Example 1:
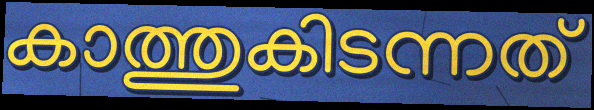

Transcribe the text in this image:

കാത്തുകിടന്നത്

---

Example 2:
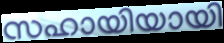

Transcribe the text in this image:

സഹായിയായി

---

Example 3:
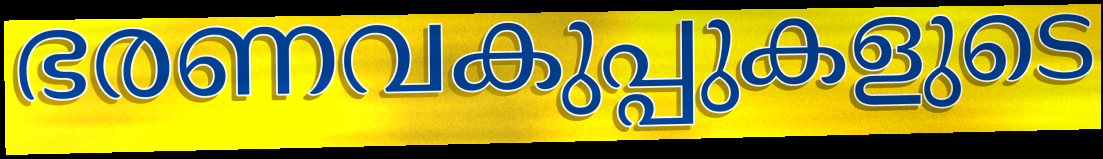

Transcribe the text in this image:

ഭരണവകുപ്പുകളുടെ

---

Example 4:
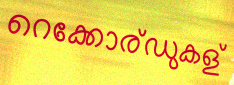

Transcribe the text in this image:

റെക്കോര്ഡുകള്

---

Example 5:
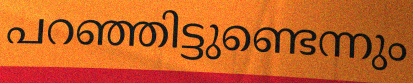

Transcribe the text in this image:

പറഞ്ഞിട്ടുണ്ടെന്നും